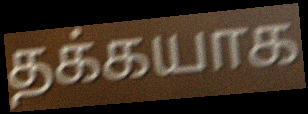
தக்கயாக